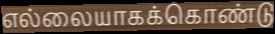
எல்லையாகக்கொண்டு